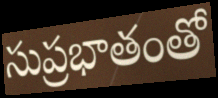
సుప్రభాతంతో